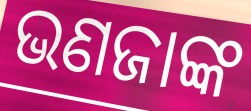
ଭଣଜାଙ୍କ